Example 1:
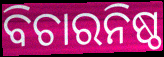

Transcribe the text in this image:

ବିଚାରନିଷ୍ଠ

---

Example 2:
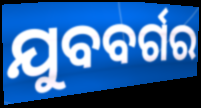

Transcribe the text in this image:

ଯୁବବର୍ଗର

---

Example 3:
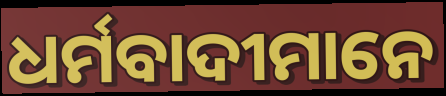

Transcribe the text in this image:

ଧର୍ମବାଦୀମାନେ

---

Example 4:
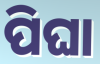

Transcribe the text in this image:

ପିଘା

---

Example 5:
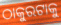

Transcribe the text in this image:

ଠାକୁରଟାକୁ